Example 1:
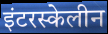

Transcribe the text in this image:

इंटरस्केलीन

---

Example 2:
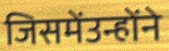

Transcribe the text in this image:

जिसमेंउन्होंने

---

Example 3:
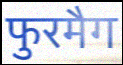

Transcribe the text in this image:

फुरमैग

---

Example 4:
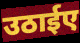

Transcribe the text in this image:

उठाईए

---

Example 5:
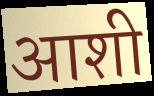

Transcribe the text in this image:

आशी